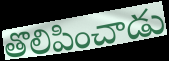
తొలిపించాడు